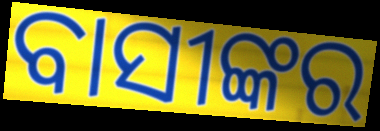
ବାସୀଙ୍କର